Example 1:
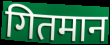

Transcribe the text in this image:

गितमान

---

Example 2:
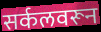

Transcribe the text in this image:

सर्कलवरून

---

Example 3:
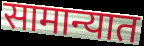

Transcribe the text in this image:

सामान्यात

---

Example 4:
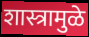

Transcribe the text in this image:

शास्त्रामुळे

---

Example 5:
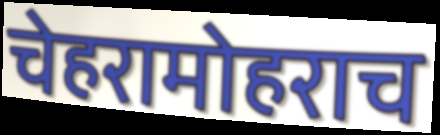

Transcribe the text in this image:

चेहरामोहराच